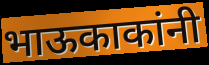
भाऊकाकांनी